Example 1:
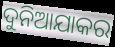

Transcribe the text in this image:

ଦୁନିଆଯାକର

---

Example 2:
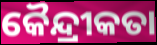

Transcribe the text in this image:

କୈନ୍ଦ୍ରୀକତା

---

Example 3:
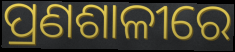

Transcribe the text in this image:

ପ୍ରଣଶାଳୀରେ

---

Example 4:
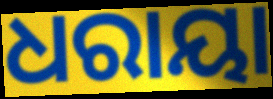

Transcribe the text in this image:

ଧରାୟା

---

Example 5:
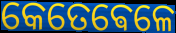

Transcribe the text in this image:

କେତେଵେଳେ